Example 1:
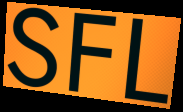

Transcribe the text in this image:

SFL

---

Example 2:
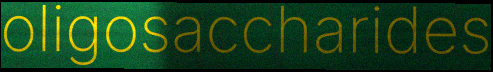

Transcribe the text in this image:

oligosaccharides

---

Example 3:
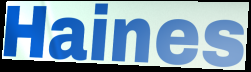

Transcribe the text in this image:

Haines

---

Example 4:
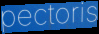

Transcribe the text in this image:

pectoris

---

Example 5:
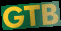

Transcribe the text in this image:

GTB